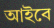
আইবে